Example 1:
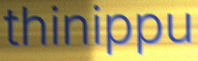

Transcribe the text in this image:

thinippu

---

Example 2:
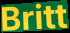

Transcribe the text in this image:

Britt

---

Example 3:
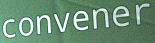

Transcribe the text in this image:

convener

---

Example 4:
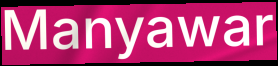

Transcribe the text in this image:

Manyawar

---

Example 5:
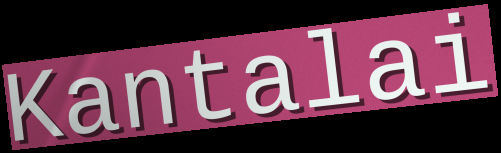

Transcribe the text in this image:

Kantalai